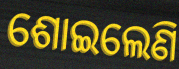
ଶୋଇଲେଣି